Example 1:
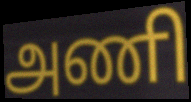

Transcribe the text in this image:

அணி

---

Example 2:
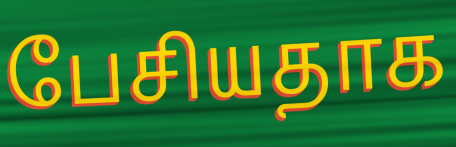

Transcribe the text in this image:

பேசியதாக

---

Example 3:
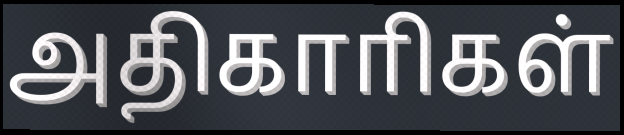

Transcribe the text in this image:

அதிகாரிகள்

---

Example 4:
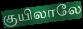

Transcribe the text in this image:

குயிலாலே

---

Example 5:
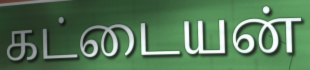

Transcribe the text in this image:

கட்டையன்